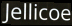
Jellicoe